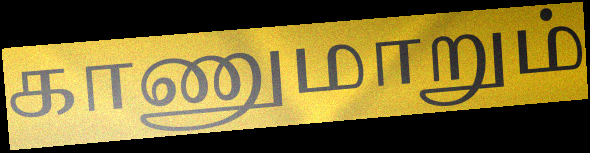
காணுமாறும்